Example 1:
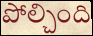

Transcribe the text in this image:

పోల్చింది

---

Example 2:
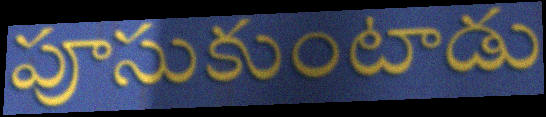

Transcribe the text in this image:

పూసుకుంటాడు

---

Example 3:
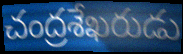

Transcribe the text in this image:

చంద్రశేఖరుడు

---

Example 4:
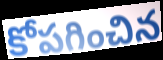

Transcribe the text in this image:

కోపగించిన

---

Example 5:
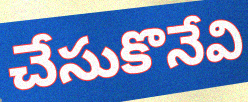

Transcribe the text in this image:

చేసుకొనేవి